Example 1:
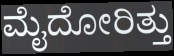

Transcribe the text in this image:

ಮೈದೋರಿತ್ತು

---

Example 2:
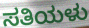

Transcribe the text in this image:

ಸತಿಯಳು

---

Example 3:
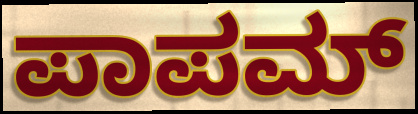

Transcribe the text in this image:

ಪಾಪಮ್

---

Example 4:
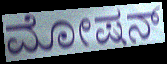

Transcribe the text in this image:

ಮೋಷನ್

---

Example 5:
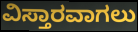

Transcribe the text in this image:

ವಿಸ್ತಾರವಾಗಲು